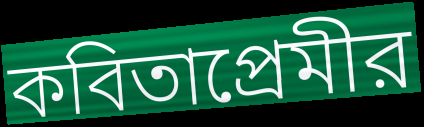
কবিতাপ্রেমীর